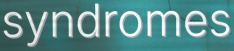
syndromes